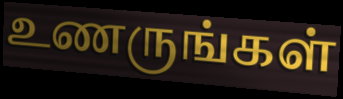
உணருங்கள்